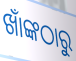
ଖାଁଙ୍କଠାରୁ